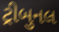
ટ્રીબુનલ